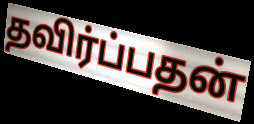
தவிர்ப்பதன்